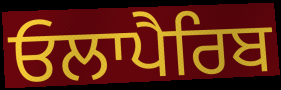
ਓਲਾਪੈਰਿਬ